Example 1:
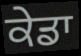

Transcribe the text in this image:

ਕੇਡਾ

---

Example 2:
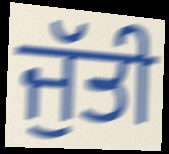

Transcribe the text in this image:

ਜੁੱਤੀ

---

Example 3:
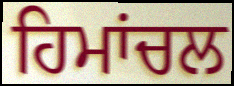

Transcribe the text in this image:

ਹਿਮਾਂਚਲ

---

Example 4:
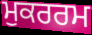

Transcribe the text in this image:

ਮੁਕਰਰਮ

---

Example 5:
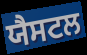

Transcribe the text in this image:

ਯੈਸਟਲ